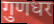
गुणधर